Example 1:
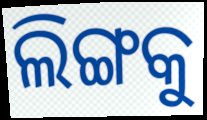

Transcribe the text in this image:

ଲିଙ୍ଗକୁ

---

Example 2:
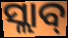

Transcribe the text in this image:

ସ୍ଲାବ୍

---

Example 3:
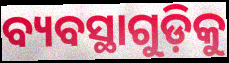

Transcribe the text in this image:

ବ୍ୟବସ୍ଥାଗୁଡ଼ିକୁ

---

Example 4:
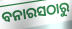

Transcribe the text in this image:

ବନାରସଠାରୁ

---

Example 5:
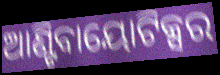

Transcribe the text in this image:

ଆଣ୍ଟିବାୟୋଟିକ୍ସର